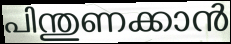
പിന്തുണക്കാൻ